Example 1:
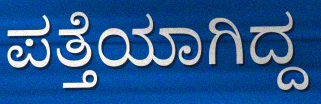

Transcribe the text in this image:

ಪತ್ತೆಯಾಗಿದ್ದ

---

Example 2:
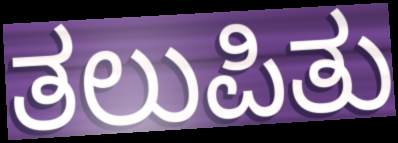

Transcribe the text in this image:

ತಲುಪಿತು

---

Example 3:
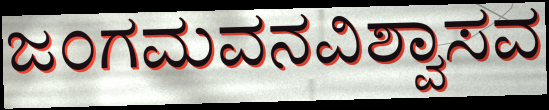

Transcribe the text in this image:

ಜಂಗಮವನವಿಶ್ವಾಸವ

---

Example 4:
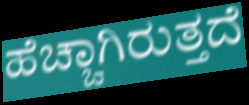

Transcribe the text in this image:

ಹೆಚ್ಚಾಗಿರುತ್ತದೆ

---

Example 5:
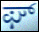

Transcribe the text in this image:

ಘ್